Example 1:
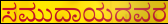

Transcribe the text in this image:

ಸಮುದಾಯದವರ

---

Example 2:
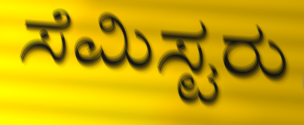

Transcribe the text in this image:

ಸೆಮಿಸ್ಟರು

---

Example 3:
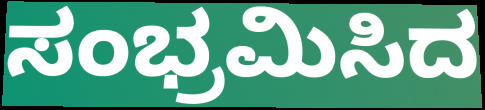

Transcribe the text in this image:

ಸಂಭ್ರಮಿಸಿದ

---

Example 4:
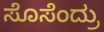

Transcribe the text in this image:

ಸೊಸೆಂದ್ರು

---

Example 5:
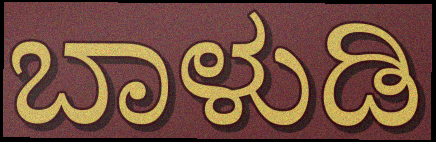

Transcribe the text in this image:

ಬಾಳುಡಿ